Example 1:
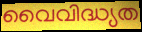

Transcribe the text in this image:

വൈവിദ്ധ്യത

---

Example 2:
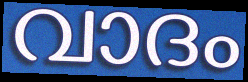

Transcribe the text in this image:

വാദം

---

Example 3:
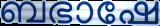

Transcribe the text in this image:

ബഭാഷേ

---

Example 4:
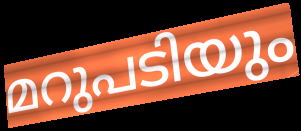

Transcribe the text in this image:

മറുപടിയും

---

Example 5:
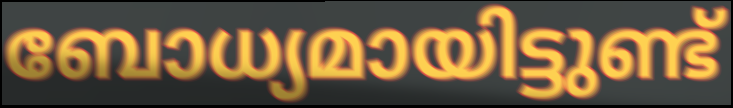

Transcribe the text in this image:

ബോധ്യമായിട്ടുണ്ട്